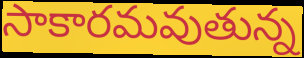
సాకారమవుతున్న